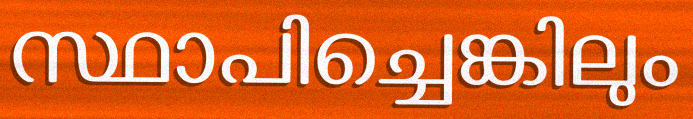
സ്ഥാപിച്ചെങ്കിലും